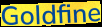
Goldfine